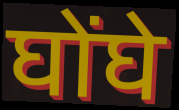
घोंघे